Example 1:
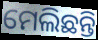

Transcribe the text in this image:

ମେଲିଛନ୍ତି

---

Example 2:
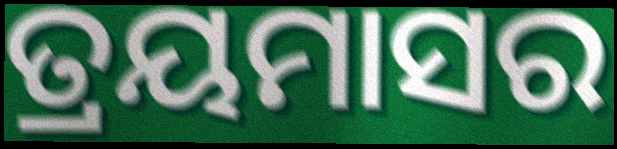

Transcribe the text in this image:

ତ୍ରୟମାସର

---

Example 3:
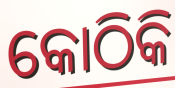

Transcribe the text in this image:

କୋଠିକି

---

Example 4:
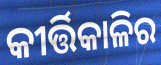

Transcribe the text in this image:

କୀର୍ତ୍ତିକାଳିର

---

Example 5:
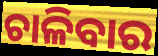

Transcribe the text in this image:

ଚାଳିବାର